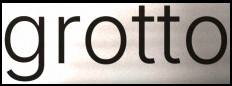
grotto